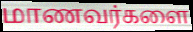
மாணவர்களை